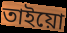
তাইয়ো